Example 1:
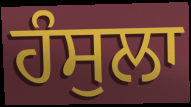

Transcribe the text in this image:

ਹੰਸੁਲਾ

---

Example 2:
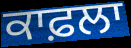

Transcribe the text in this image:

ਕਾਫ਼ਲਾ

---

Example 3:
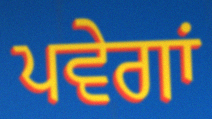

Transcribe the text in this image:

ਪਵੇਗਾਂ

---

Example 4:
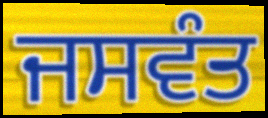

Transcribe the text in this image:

ਜਸਵੰਤ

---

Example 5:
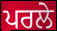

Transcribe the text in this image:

ਪਰਲੇ